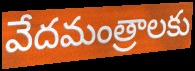
వేదమంత్రాలకు